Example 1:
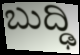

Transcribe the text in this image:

ಬುದ್ಢಿ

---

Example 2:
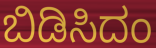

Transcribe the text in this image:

ಬಿಡಿಸಿದಂ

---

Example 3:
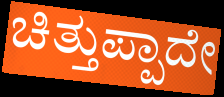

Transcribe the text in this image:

ಚಿತ್ತುಪ್ಪಾದೇ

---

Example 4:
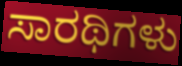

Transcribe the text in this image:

ಸಾರಥಿಗಳು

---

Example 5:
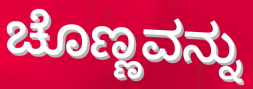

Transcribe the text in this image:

ಚೊಣ್ಣವನ್ನು